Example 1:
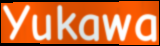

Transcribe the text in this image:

Yukawa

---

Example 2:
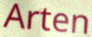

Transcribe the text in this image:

Arten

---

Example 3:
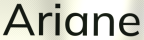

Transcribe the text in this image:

Ariane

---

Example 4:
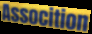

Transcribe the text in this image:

Assocition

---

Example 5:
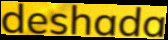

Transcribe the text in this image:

deshada